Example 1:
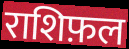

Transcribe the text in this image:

राशिफ़ल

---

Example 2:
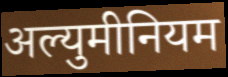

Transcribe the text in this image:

अल्युमीनियम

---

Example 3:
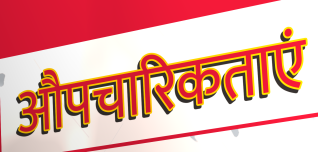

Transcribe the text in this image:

औपचारिकताएं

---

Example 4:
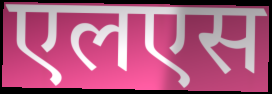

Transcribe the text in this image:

एलएस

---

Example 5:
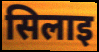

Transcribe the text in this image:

सिलाइ